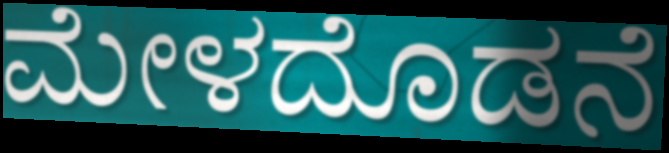
ಮೇಳದೊಡನೆ